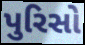
પુરિસો